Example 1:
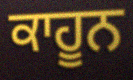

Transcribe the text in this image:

ਕਾਹੂਨ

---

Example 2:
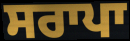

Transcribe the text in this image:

ਸਰਾਪਾ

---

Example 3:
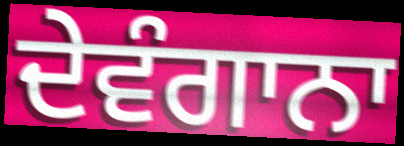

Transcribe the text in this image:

ਦੇਵੰਗਾਨਾ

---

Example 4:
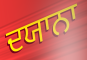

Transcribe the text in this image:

ਦਯਾਨਾ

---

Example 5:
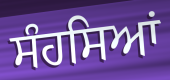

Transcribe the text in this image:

ਸੰਹਸਿਆਂ